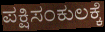
ಪಕ್ಷಿಸಂಕುಲಕ್ಕೆ